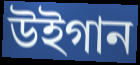
উইগান